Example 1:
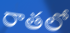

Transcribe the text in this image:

రాతలో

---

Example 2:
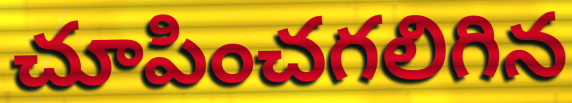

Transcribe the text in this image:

చూపించగలిగిన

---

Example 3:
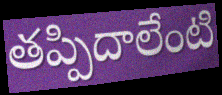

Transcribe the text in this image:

తప్పిదాలేంటి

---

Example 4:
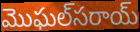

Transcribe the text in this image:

మొఘల్‌సరాయ్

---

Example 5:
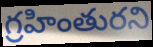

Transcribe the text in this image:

గ్రహింతురని